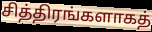
சித்திரங்களாகத்